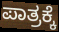
ಪಾತ್ರಕ್ಕೆ